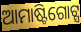
ଆମାଷ୍ଟିଗୋଟ୍ସ